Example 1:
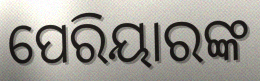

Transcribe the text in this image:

ପେରିୟାରଙ୍କ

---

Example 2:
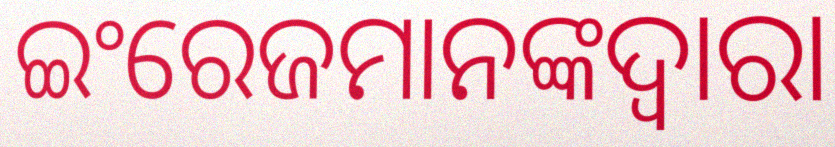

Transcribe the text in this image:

ଇଂରେଜମାନଙ୍କଦ୍ୱାରା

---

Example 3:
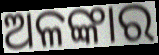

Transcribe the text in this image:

ଅଳଙ୍କାର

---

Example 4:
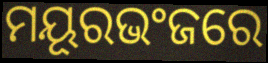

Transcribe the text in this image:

ମୟୂରଭଂଜରେ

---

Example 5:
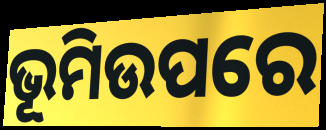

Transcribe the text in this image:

ଭୂମିଉପରେ